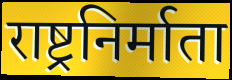
राष्ट्रनिर्माता